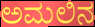
ಅಮಲಿನ